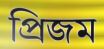
প্রিজম